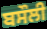
ਬਸੌਲੀ